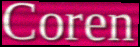
Coren